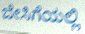
ಬೇಸಿಗೆಯಲ್ಲಿ